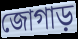
জোগাড়